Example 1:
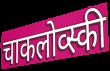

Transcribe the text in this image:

चाकलोव्स्की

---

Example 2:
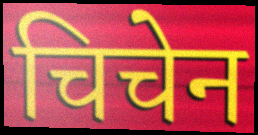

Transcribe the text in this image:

चिचेन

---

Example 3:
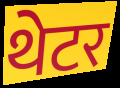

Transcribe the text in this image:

थेटर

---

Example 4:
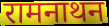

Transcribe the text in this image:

रामनाथन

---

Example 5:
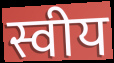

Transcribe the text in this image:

स्वीय